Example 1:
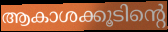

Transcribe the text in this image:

ആകാശക്കൂടിന്റെ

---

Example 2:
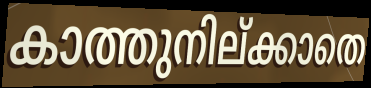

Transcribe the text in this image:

കാത്തുനില്ക്കാതെ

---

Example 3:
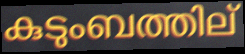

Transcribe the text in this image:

കുടുംബത്തില്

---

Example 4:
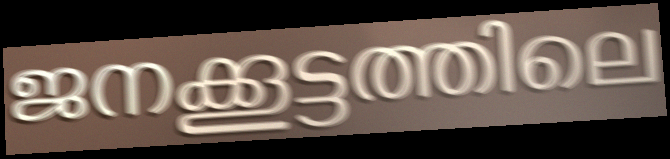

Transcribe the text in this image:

ജനക്കൂട്ടത്തിലെ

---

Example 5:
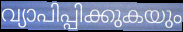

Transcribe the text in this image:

വ്യാപിപ്പിക്കുകയും